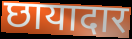
छायादार